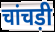
चांचड़ी